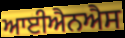
ਆਈਐਨਐਸ